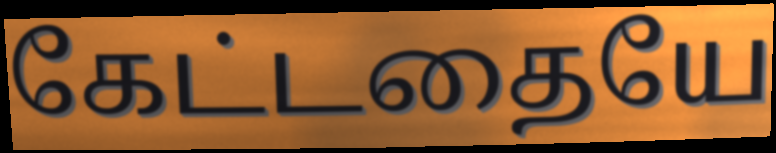
கேட்டதையே